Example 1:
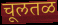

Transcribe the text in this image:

चूलतळ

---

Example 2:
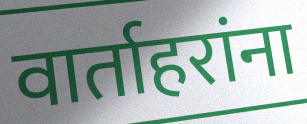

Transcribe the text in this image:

वार्ताहरांना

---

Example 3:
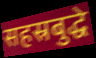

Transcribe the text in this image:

सहस्रबुद्धे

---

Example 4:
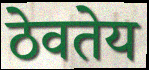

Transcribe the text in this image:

ठेवतेय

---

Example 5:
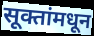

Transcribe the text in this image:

सूक्तांमधून